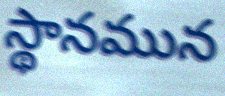
స్థానమున